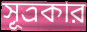
সূত্রকার